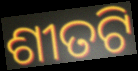
ଶୀତଟି